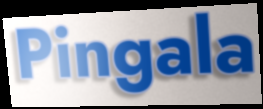
Pingala